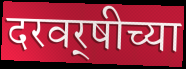
दरवर्षीच्या